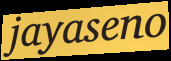
jayaseno